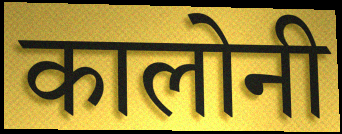
कालोनी